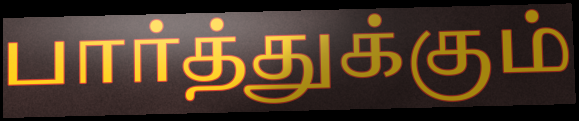
பார்த்துக்கும்